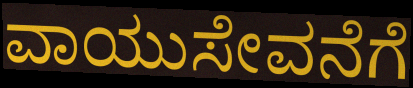
ವಾಯುಸೇವನೆಗೆ